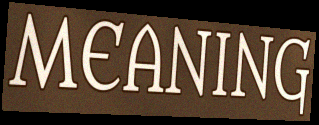
MEANING